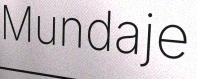
Mundaje